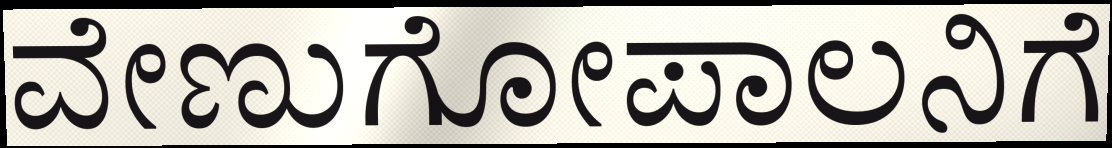
ವೇಣುಗೋಪಾಲನಿಗೆ